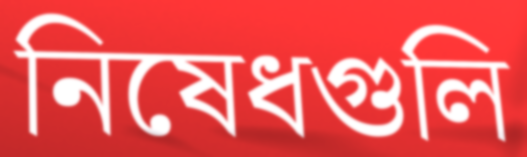
নিষেধগুলি